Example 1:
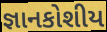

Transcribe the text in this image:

જ્ઞાનકોશીય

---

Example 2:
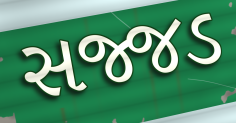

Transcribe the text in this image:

સજ્જડ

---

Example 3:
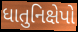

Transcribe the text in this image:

ધાતુનિક્ષેપો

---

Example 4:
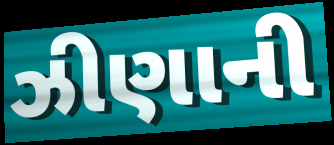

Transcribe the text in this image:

ઝીણાની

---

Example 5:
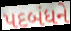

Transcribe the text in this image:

પદબંધને